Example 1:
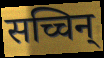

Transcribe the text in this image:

सच्चिन्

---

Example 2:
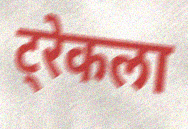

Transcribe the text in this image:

ट्रेकला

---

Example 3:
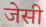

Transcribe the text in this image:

जेसी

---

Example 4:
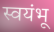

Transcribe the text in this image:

स्वयंभू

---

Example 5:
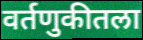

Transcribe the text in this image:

वर्तणुकीतला